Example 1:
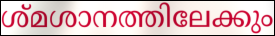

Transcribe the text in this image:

ശ്മശാനത്തിലേക്കും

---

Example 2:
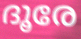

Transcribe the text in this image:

ദൂരേ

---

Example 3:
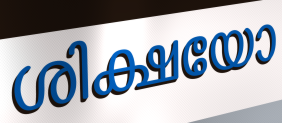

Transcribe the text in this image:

ശിക്ഷയോ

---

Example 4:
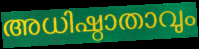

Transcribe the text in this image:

അധിഷ്ഠാതാവും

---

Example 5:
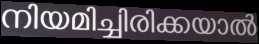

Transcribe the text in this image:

നിയമിച്ചിരിക്കയാൽ